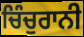
ਚਿੰਚੁਰਾਨੀ